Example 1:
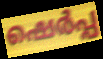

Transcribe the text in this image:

ഷെർപ്പ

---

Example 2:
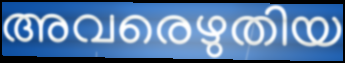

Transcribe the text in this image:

അവരെഴുതിയ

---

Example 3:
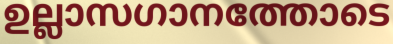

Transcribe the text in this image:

ഉല്ലാസഗാനത്തോടെ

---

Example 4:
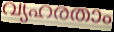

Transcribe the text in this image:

വ്യഹരതാം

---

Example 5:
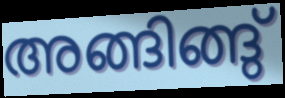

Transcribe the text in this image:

അങ്ങിങ്ങു്